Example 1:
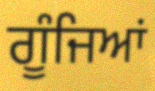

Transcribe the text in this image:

ਗੂੰਜਿਆਂ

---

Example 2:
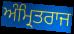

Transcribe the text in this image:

ਅੰਮ੍ਰਿਤਰਾਜ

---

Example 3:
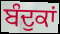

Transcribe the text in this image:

ਬੰਦੁਕਾਂ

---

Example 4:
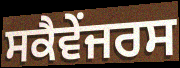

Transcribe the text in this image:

ਸਕੈਵੇਂਜਰਸ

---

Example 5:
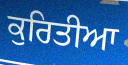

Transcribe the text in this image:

ਕੁਰਿਤੀਆ